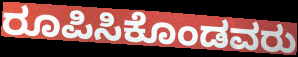
ರೂಪಿಸಿಕೊಂಡವರು